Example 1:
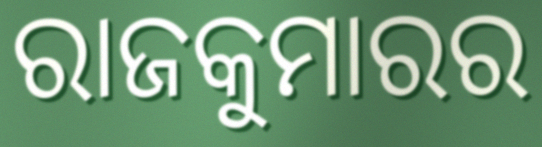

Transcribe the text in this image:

ରାଜକୁମାରର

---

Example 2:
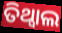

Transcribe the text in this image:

ତିଥ୍ୱାଲ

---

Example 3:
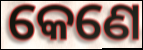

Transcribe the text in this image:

କେଣେ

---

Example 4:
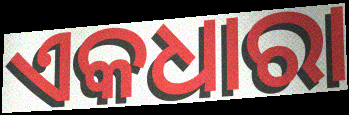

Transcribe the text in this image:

ଏକଧାରା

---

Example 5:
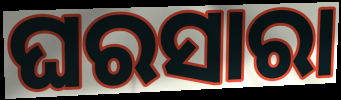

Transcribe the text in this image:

ଘରସାରା